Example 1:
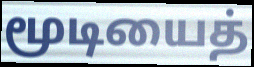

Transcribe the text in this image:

மூடியைத்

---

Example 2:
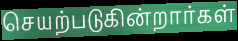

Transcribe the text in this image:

செயற்படுகின்றார்கள்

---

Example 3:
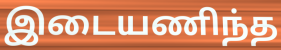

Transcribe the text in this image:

இடையணிந்த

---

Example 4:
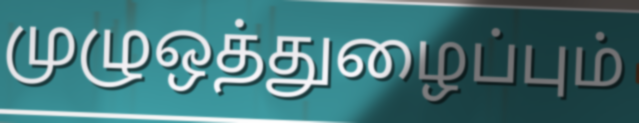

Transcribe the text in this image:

முழுஒத்துழைப்பும்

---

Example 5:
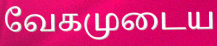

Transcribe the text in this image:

வேகமுடைய